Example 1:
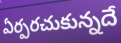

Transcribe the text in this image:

ఏర్పరచుకున్నదే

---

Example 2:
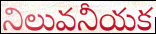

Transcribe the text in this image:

నిలువనీయక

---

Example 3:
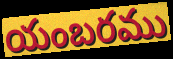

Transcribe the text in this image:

యంబరము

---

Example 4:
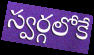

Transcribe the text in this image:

స్వర్గలోకే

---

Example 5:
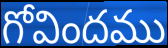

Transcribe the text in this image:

గోవిందము